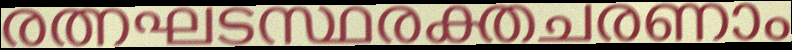
രത്നഘടസ്ഥരക്തചരണാം